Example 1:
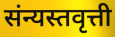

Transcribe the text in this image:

संन्यस्तवृत्ती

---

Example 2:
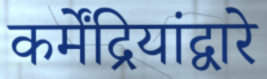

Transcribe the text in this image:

कर्मेंद्रियांद्वारे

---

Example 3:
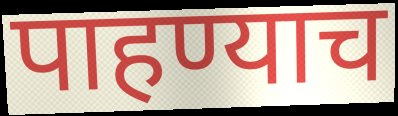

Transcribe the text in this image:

पाहण्याच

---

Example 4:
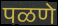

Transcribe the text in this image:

पळणे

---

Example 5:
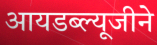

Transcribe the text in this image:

आयडब्ल्यूजीने